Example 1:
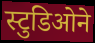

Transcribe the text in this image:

स्टुडिओने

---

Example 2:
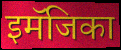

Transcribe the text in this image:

इमॅजिका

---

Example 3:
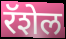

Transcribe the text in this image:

रॅशेल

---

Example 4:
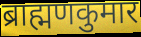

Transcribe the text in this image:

ब्राह्मणकुमार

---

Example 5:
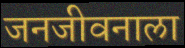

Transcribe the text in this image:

जनजीवनाला